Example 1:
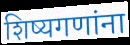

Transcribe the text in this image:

शिष्यगणांना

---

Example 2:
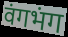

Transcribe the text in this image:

वंगभंग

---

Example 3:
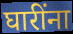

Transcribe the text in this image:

घारींना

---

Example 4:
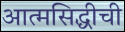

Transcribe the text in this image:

आत्मसिद्धीची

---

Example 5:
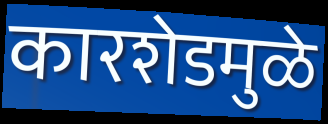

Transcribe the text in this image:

कारशेडमुळे